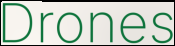
Drones